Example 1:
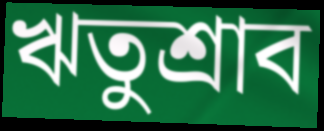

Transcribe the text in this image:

ঋতুশ্রাব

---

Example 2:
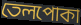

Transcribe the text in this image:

তেলপোকা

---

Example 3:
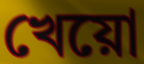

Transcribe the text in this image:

খেয়ো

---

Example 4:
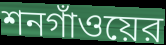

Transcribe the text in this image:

শনগাঁওয়ের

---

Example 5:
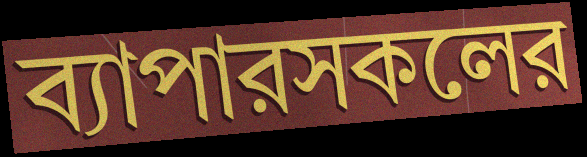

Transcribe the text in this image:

ব্যাপারসকলের